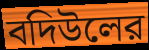
বদিউলের